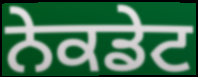
ਨੇਕਡੇਟ